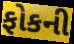
ફોકની